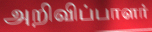
அறிவிப்பாளர்